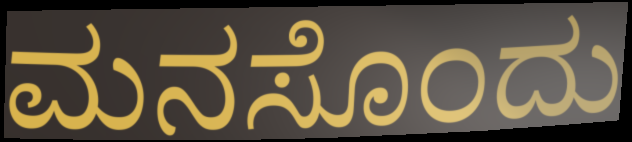
ಮನಸೊಂದು